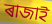
ৰাজাই